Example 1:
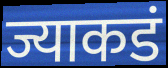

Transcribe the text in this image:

ज्याकडं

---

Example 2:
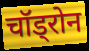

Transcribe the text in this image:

चॉड्रोन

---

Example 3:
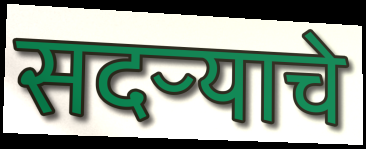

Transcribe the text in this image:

सदऱ्याचे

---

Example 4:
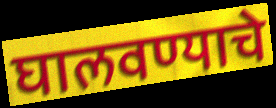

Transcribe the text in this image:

घालवण्याचे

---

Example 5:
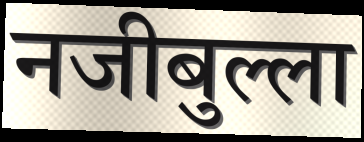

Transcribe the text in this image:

नजीबुल्ला